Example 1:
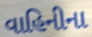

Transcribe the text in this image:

વાહિનીના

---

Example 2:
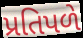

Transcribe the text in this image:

પ્રતિપળે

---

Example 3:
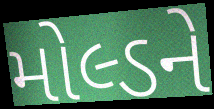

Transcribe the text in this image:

મોલ્ડને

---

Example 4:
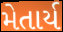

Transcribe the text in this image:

મેતાર્ય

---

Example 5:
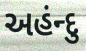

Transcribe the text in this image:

અહંન્દુ